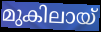
മുകിലായ്